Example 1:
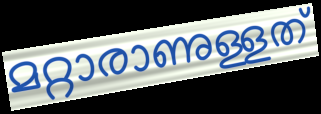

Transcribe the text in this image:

മറ്റാരാണുള്ളത്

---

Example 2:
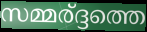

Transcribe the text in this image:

സമ്മര്ദ്ദത്തെ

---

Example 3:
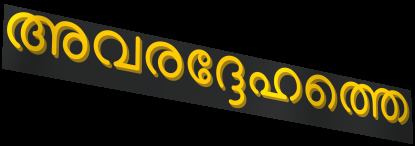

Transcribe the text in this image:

അവരദ്ദേഹത്തെ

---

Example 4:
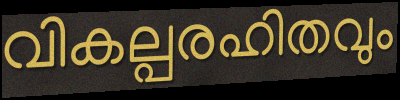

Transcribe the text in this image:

വികല്പരഹിതവും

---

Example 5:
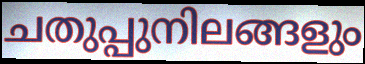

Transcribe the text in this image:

ചതുപ്പുനിലങ്ങളും